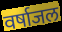
वर्षाजल